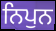
ਨਿਪੁਨ